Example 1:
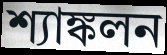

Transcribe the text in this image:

শ্যাঙ্কলন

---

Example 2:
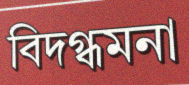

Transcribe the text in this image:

বিদগ্ধমনা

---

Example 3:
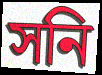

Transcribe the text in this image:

সনি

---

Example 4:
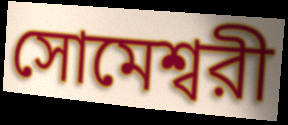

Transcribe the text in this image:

সোমেশ্বরী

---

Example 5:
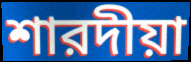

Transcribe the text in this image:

শারদীয়া